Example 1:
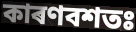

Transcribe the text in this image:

কাৰণবশতঃ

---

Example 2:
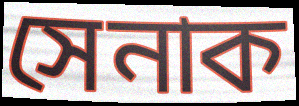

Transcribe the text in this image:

সেনাক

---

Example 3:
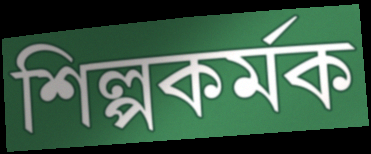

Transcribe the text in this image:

শিল্পকৰ্মক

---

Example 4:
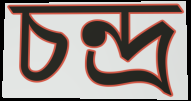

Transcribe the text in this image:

চন্দ্ৰ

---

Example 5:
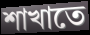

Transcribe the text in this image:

শাখাতে